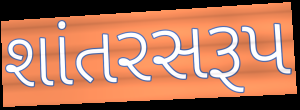
શાંતરસરૂપ